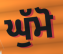
ਘੁੱਮੋ